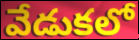
వేడుకలో